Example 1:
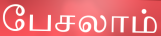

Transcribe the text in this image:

பேசலாம்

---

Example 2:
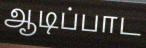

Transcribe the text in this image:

ஆடிப்பாட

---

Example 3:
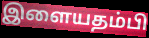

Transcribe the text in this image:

இளையதம்பி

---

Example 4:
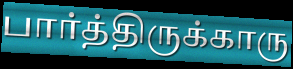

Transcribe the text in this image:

பார்த்திருக்காரு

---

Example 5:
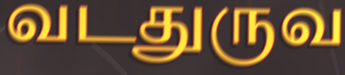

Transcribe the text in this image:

வடதுருவ